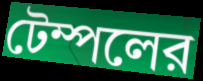
টেম্পলের